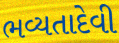
ભવ્યતાદેવી